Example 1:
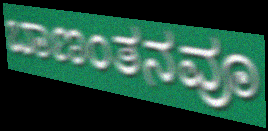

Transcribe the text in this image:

ಬಾಣಂತನವೂ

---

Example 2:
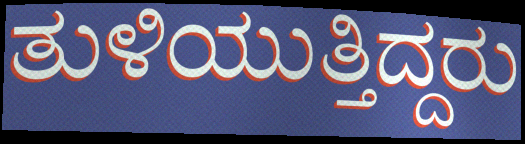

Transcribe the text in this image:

ತುಳಿಯುತ್ತಿದ್ದರು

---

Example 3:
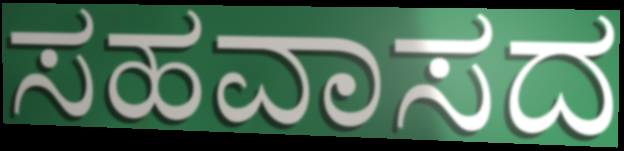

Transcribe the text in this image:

ಸಹವಾಸದ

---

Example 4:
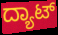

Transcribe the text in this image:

ದ್ಯಾಟ್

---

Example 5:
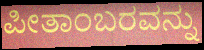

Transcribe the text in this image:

ಪೀತಾಂಬರವನ್ನು